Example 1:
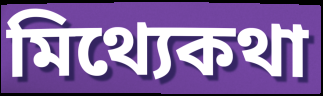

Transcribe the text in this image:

মিথ্যেকথা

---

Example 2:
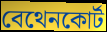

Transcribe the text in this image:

বেথেনকোর্ট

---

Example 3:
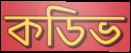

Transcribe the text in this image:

কডিভ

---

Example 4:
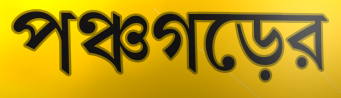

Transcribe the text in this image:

পঞ্চগড়ের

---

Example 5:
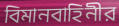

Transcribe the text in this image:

বিমানবাহিনীর